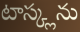
టాస్క్లను